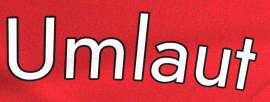
Umlaut